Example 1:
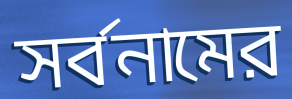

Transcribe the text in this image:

সর্বনামের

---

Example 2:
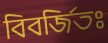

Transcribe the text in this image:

বিবর্জিতঃ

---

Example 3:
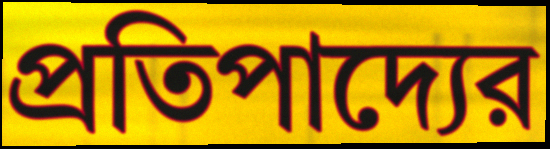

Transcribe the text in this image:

প্রতিপাদ্যের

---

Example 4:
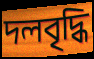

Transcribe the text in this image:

দলবৃদ্ধি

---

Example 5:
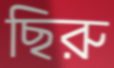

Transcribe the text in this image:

ছিরু